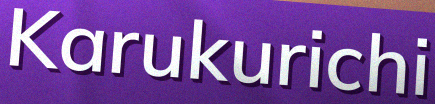
Karukurichi